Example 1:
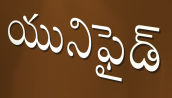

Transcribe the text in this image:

యునిఫైడ్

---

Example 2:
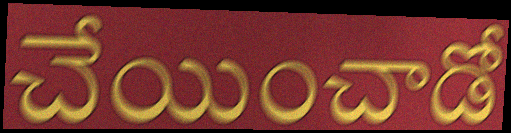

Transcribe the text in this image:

చేయించాడో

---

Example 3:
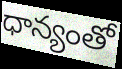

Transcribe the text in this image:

ధాన్యంతో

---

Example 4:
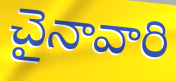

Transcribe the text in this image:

చైనావారి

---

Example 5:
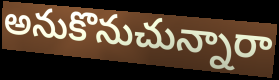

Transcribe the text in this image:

అనుకొనుచున్నారా